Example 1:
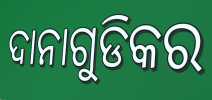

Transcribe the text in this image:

ଦାନାଗୁଡିକର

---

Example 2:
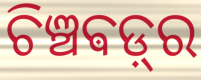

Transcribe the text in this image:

ଚିଞ୍ଚଵଡ଼୍‌ର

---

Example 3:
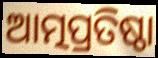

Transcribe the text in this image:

ଆତ୍ମପ୍ରତିଷ୍ଠା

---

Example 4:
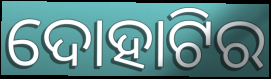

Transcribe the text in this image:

ଦୋହାଟିର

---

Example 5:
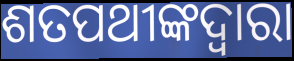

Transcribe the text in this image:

ଶତପଥୀଙ୍କଦ୍ୱାରା